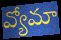
వ్యోమా